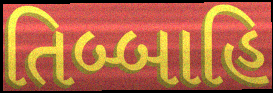
તિબ્બાહિ